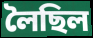
লৈছিল